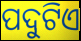
ପଦୁଟିଏ